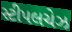
સ્ટીપલચેઝ